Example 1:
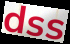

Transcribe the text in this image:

dss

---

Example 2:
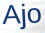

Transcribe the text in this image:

Ajo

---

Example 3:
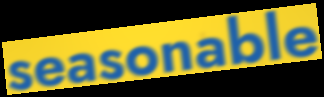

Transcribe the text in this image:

seasonable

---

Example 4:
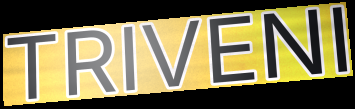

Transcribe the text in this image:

TRIVENI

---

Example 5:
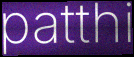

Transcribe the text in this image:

patthi